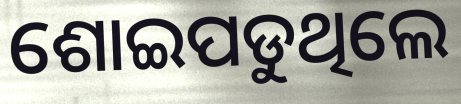
ଶୋଇପଡୁଥିଲେ